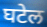
घटेल